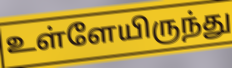
உள்ளேயிருந்து